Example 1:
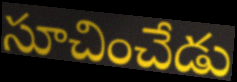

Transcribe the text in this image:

సూచించేడు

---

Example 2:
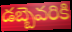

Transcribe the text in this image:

డబ్బెవరికి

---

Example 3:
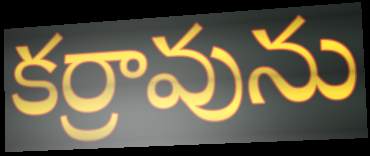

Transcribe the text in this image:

కర్రావును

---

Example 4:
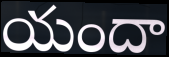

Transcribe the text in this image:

యందా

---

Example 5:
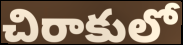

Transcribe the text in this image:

చిరాకులో